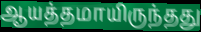
ஆயத்தமாயிருந்தது